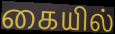
கையில்